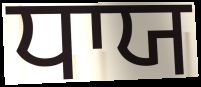
ਧਾਯ